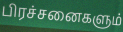
பிரச்சனைகளும்